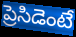
ప్రెసిడెంటే